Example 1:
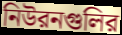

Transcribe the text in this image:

নিউরনগুলির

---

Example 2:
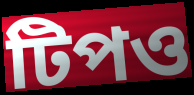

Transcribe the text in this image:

টিপও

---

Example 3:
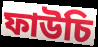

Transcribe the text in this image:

ফাউচি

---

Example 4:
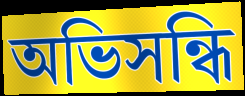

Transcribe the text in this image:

অভিসন্ধি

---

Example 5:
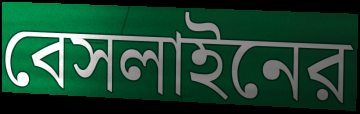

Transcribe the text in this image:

বেসলাইনের